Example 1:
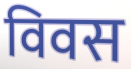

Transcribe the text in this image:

विवस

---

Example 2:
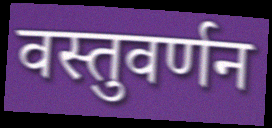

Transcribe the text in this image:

वस्तुवर्णन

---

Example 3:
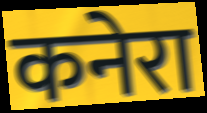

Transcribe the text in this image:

कनेरा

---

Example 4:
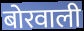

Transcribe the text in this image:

बोरवाली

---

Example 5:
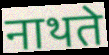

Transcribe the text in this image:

नाथते